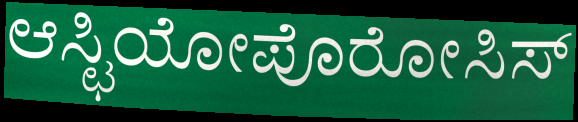
ಆಸ್ಟಿಯೋಪೊರೋಸಿಸ್